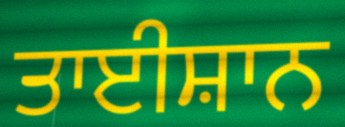
ਤਾਈਸ਼ਾਨ